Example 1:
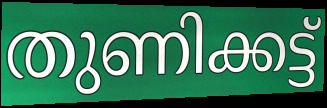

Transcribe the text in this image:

തുണിക്കട്ട്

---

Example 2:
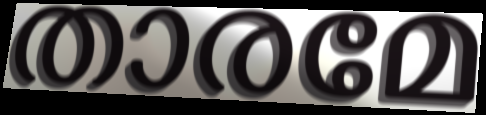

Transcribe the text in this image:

താരമേ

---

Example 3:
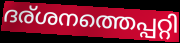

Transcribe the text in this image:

ദര്ശനത്തെപ്പറ്റി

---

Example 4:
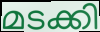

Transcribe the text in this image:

മടക്കി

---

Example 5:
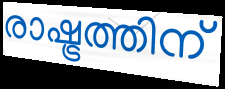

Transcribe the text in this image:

രാഷ്ട്രത്തിന്